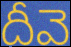
దీవె